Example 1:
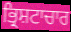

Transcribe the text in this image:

ਭ੍ਰਿਸ਼ਟਾਚਾਰ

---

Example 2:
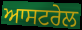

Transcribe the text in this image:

ਆਸਟਰੇਲ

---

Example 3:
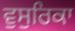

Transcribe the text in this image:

ਵੁਸੁਰਿਕਾ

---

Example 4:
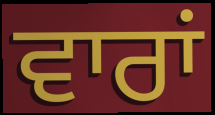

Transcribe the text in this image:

ਵਾਰਾਂ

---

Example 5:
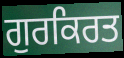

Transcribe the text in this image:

ਗੁਰਕਿਰਤ